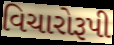
વિચારોરૂપી